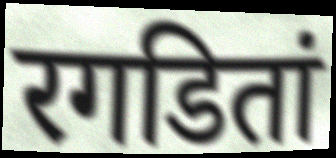
रगडितां